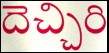
దెచ్చిరి